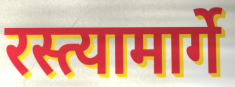
रस्त्यामार्गे